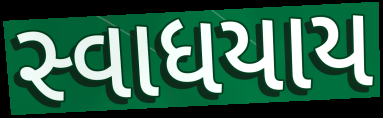
સ્વાધયાય